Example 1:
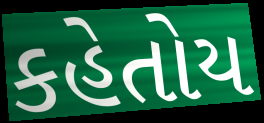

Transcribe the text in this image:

કહેતોય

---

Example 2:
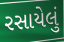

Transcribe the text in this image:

રસાયેલું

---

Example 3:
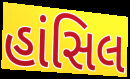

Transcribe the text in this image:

હાંસિલ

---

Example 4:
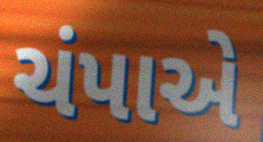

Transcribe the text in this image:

ચંપાએ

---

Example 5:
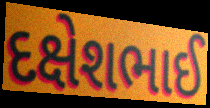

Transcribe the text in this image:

દક્ષેશભાઈ